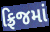
ફ્રિજમાં